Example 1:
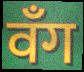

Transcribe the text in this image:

वँग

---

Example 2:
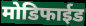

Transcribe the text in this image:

मोडिफाईड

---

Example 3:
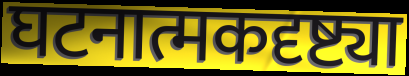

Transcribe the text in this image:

घटनात्मकदृष्ट्या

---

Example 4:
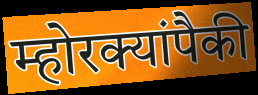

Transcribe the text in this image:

म्होरक्यांपैकी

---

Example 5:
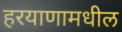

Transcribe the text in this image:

हरयाणामधील